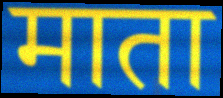
माता